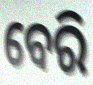
ବେରି